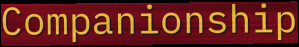
Companionship